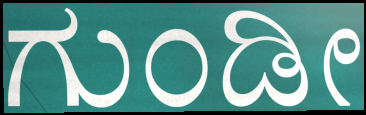
ಗುಂಡೀ